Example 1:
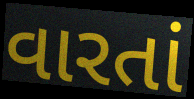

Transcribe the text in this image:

વારતાં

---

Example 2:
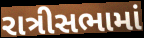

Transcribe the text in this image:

રાત્રીસભામાં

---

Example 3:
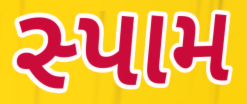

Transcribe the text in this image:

સ્પામ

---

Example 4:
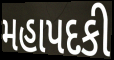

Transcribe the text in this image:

મહાપદકી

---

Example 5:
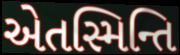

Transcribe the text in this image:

એતસ્મિન્તિ